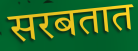
सरबतात